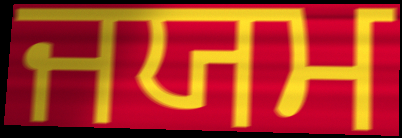
ਜਯਮ